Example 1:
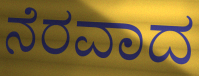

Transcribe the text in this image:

ನೆರವಾದ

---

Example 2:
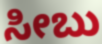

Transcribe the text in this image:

ಸೀಬು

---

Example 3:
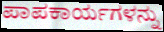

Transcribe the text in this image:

ಪಾಪಕಾರ್ಯಗಳನ್ನು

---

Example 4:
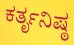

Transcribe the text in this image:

ಕರ್ತೃನಿಷ್ಠ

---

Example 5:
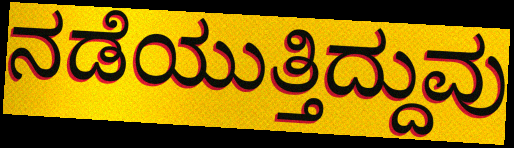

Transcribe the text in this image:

ನಡೆಯುತ್ತಿದ್ದುವು